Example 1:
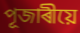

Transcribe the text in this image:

পূজাৰীয়ে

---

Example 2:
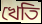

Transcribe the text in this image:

খেতি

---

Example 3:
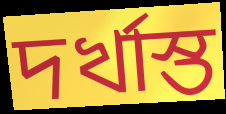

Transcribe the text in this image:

দৰ্খাস্ত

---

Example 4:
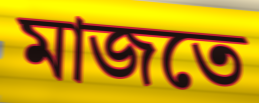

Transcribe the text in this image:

মাজতে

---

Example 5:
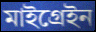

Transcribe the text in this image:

মাইগ্ৰেইন